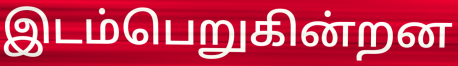
இடம்பெறுகின்றன